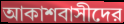
আকাশবাসীদের